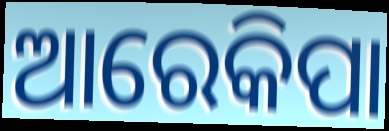
ଆରେକିପା